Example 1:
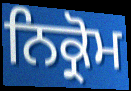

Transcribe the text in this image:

ਨਿਕ੍ਰੋਮ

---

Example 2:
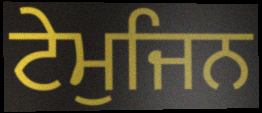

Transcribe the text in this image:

ਟੇਮੁਜਿਨ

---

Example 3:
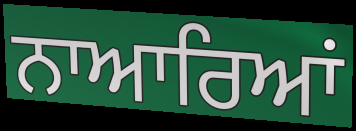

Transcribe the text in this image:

ਨਾਆਰਿਆਂ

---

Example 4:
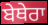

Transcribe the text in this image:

ਬੇਥੇਰਾ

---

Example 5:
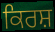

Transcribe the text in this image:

ਕਿਰਸ਼